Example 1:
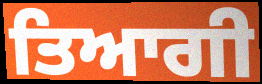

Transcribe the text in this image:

ਤਿਆਗੀ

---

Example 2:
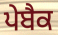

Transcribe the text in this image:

ਪੇਬੈਕ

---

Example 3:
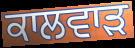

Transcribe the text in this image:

ਕਾਲਵਾੜ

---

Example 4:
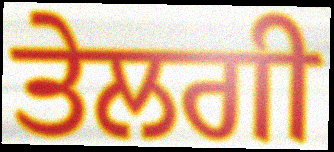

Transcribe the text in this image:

ਤੇਲਗੀ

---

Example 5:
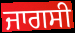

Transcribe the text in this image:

ਜਾਗਸੀ